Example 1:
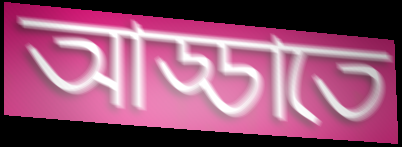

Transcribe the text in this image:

আড্ডাতে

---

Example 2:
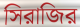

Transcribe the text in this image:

সিরাজির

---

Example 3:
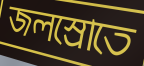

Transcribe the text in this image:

জলস্রোতে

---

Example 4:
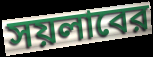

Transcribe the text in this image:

সয়লাবের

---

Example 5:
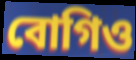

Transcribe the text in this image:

বোগিও